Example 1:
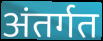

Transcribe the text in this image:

अंतर्गत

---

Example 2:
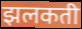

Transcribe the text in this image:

झलकती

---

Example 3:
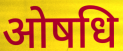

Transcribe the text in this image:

ओषधि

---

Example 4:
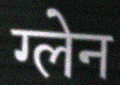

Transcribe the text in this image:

ग्लेन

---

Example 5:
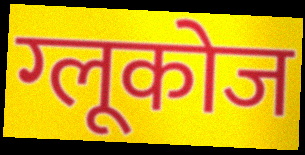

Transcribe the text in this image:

ग्लूकोज